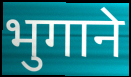
भुगाने